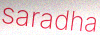
saradha